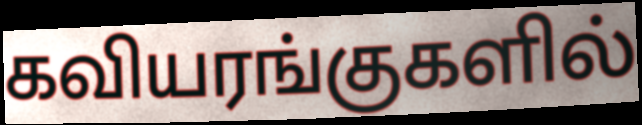
கவியரங்குகளில்